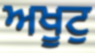
ਅਖੂਟੁ